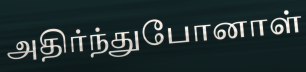
அதிர்ந்துபோனாள்